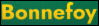
Bonnefoy